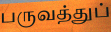
பருவத்துப்